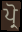
ਪ੍ਰੋ